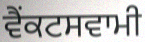
ਵੈਂਕਟਸਵਾਮੀ